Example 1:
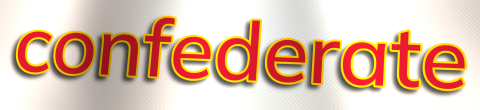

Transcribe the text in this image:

confederate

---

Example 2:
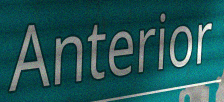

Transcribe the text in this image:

Anterior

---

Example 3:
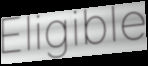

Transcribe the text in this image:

Eligible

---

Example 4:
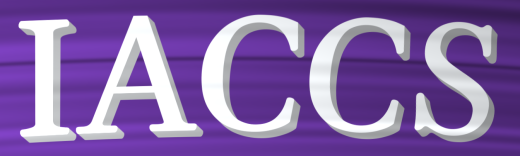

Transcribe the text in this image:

IACCS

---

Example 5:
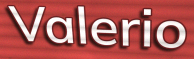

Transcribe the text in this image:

Valerio